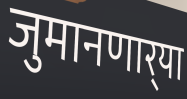
जुमानणार्‍या